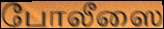
போலீஸை